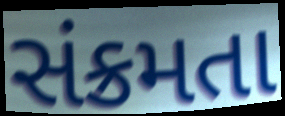
સંક્રમતા